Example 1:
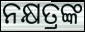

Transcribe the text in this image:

ନକ୍ଷତ୍ରଙ୍କ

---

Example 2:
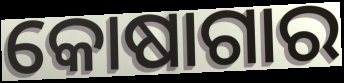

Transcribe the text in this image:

କୋଷାଗାର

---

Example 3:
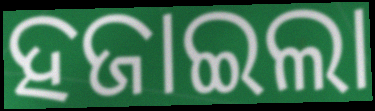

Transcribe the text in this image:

ହଜାଇଲା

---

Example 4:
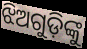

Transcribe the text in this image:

ଝିଅଗୁଡ଼ିଙ୍କୁ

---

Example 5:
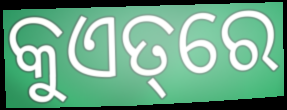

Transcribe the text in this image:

କୁଏତ୍‌ରେ